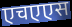
एचएएस